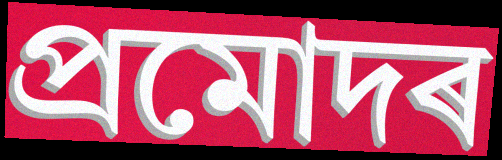
প্ৰমোদৰ